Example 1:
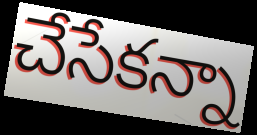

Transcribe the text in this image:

చేసేకన్నా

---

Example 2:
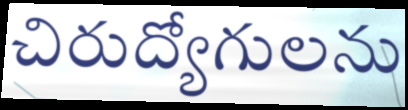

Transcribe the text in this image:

చిరుద్యోగులను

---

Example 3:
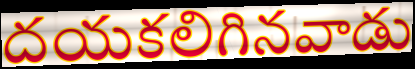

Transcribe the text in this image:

దయకలిగినవాడు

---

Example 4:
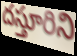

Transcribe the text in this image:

దస్తూరిని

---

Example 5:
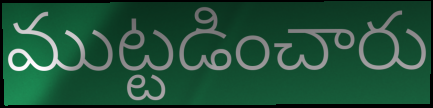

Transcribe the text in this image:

ముట్టడించారు